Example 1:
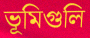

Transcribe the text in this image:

ভূমিগুলি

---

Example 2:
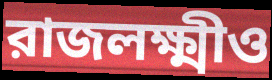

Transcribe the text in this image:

রাজলক্ষ্মীও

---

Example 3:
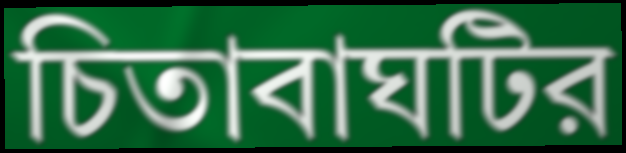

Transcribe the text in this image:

চিতাবাঘটির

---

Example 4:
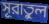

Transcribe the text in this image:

সূরাতুল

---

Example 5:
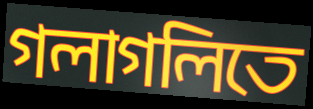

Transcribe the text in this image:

গলাগলিতে